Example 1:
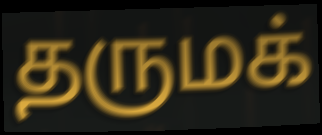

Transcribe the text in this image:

தருமக்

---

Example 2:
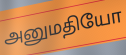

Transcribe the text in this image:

அனுமதியோ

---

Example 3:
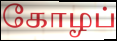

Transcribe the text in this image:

கோழப்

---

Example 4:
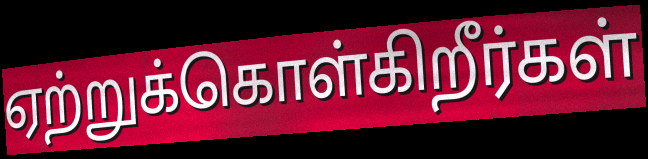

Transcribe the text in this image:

ஏற்றுக்கொள்கிறீர்கள்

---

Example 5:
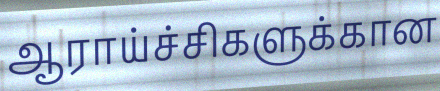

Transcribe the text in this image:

ஆராய்ச்சிகளுக்கான